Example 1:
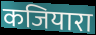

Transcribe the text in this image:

कजियारा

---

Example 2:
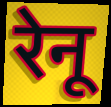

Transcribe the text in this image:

रेनू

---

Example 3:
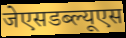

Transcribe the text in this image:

जेएसडब्ल्यूएस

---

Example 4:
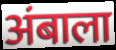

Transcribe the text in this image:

अंबाला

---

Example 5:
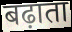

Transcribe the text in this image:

बढ़ाता